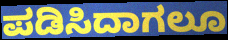
ಪಡಿಸಿದಾಗಲೂ